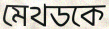
মেথডকে